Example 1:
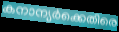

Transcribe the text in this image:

കനാന്യർക്കെതിരെ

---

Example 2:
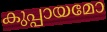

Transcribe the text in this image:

കുപ്പായമോ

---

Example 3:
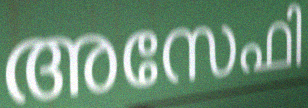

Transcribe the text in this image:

അസേഫി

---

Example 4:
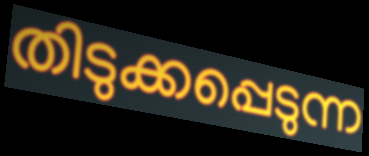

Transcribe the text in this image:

തിടുക്കപ്പെടുന്ന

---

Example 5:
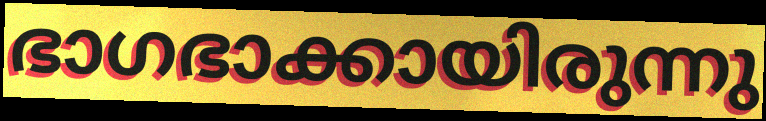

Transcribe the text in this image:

ഭാഗഭാക്കായിരുന്നു